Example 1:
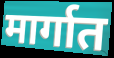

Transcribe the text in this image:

मार्गात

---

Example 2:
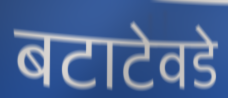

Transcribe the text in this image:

बटाटेवडे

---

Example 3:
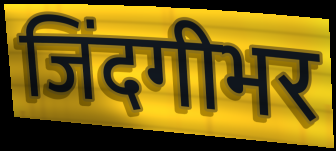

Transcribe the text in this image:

जिंदगीभर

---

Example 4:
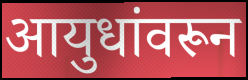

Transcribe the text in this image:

आयुधांवरून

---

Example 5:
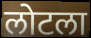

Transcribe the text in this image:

लोटला